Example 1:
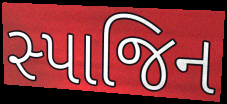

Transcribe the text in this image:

સ્પાજિન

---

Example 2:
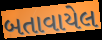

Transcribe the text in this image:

બતાવાયેલ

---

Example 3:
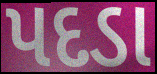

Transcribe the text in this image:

પદડા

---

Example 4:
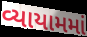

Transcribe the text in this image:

વ્યાયામમાં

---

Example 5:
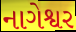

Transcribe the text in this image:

નાગેશ્વર